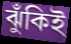
ঝুঁকিই